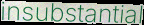
insubstantial